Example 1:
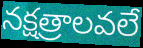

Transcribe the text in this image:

నక్షత్రాలవలే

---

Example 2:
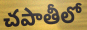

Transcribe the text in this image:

చపాతీలో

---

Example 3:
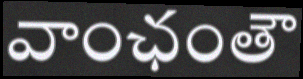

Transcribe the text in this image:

వాంఛంతౌ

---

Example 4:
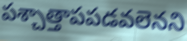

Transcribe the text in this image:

పశ్చాత్తాపపడవలెనని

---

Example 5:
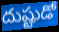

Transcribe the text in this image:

దుష్టుడో